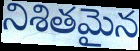
నిశితమైన